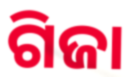
ଗିଜା